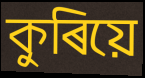
কুৰিয়ে